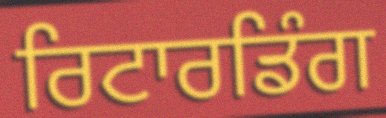
ਰਿਟਾਰਡਿੰਗ